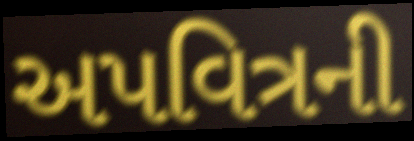
અપવિત્રની